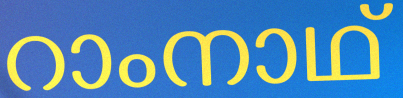
റാംനാഥ്